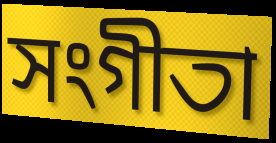
সংগীতা